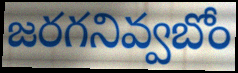
జరగనివ్వబోం